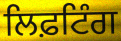
ਲਿਫ਼ਟਿੰਗ